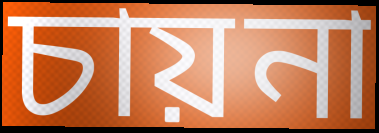
চায়না